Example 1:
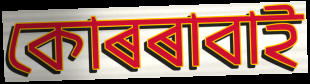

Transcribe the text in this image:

কোৰৰাবাই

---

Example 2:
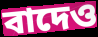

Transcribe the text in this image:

বাদেও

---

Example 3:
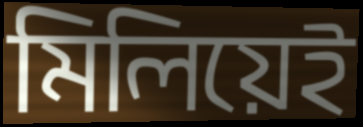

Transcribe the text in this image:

মিলিয়েই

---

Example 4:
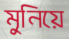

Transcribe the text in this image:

মুনিয়ে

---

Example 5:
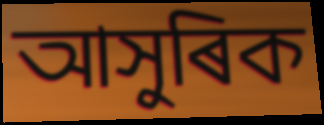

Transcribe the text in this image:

আসুৰিক